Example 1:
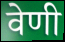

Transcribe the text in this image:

वेणी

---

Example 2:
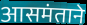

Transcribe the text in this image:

आसमंताने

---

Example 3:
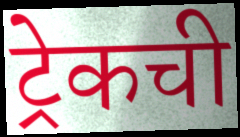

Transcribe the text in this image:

ट्रेकची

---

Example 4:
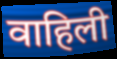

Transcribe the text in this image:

वाहिली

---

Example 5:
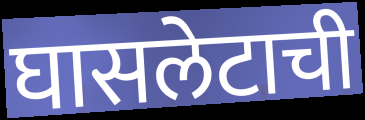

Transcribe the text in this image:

घासलेटाची